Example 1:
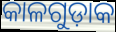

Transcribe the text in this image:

କାଳଗୁଡ଼ାକ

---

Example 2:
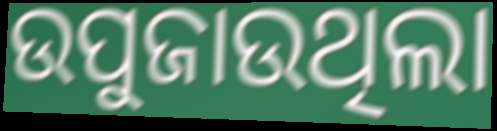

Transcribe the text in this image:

ଉପୁଜାଉଥିଲା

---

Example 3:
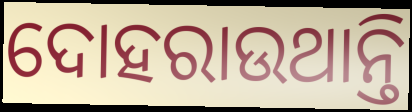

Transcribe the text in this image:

ଦୋହରାଉଥାନ୍ତି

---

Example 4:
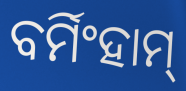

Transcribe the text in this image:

ବର୍ମିଂହାମ୍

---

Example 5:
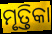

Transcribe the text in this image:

ମୃତ୍ତିକା